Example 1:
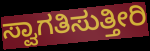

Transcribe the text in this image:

ಸ್ವಾಗತಿಸುತ್ತೀರಿ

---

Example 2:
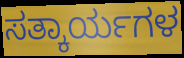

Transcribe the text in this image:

ಸತ್ಕಾರ್ಯಗಳ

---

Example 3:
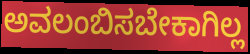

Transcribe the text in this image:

ಅವಲಂಬಿಸಬೇಕಾಗಿಲ್ಲ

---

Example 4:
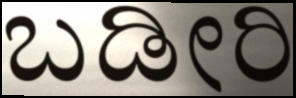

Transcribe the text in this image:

ಬಡೀರಿ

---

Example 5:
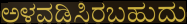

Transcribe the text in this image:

ಅಳವಡಿಸಿರಬಹುದು